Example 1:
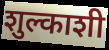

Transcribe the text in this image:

शुल्काशी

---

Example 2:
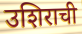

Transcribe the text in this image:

उशिराची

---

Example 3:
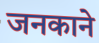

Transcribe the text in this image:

जनकाने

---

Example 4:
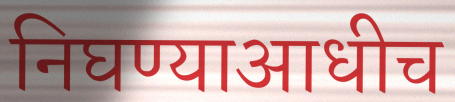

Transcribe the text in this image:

निघण्याआधीच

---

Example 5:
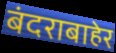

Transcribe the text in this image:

बंदराबाहेर